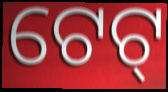
ଟେଟ୍